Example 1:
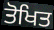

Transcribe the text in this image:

ਤੋਖਿਤ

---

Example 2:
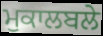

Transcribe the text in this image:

ਮੁਕਾਲਬਲੇ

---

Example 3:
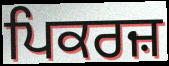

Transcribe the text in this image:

ਪਿਕਰਜ਼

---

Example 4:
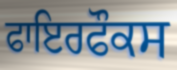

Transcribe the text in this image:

ਫਾਇਰਫੌਕਸ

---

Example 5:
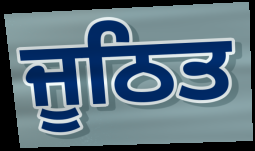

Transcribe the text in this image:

ਜੂਠਿਤ